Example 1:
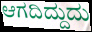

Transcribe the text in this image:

ಆಗದಿದ್ದುದು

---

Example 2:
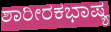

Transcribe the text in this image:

ಶಾರೀರಕಭಾಷ್ಯ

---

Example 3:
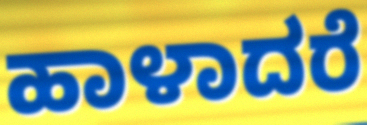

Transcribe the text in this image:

ಹಾಳಾದರೆ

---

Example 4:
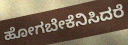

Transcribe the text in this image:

ಹೋಗಬೇಕೆನಿಸಿದರೆ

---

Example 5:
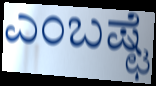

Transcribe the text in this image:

ಎಂಬಷ್ಟೆ